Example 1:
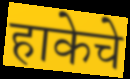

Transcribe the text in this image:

हाकेचे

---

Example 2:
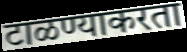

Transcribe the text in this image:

टाळण्याकरता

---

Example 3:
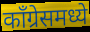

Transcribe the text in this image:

काँग्रेसमध्ये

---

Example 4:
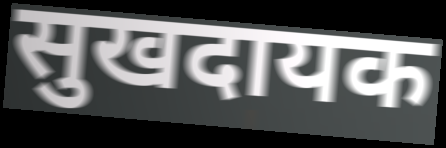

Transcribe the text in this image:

सुखदायक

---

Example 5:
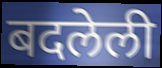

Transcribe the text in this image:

बदलेली